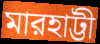
মারহাট্টী